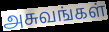
அசுவங்கள்